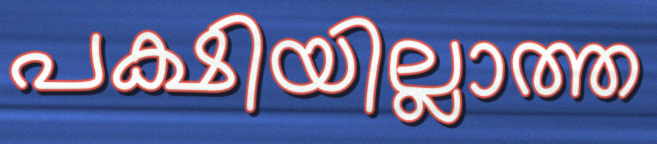
പക്ഷിയില്ലാത്ത